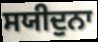
ਸਯੀਦੁਨਾ